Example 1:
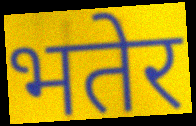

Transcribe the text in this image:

भतेर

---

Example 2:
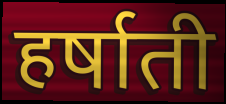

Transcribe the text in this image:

हर्षाती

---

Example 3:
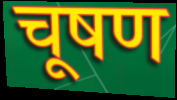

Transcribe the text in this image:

चूषण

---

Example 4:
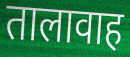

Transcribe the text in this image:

तालावाह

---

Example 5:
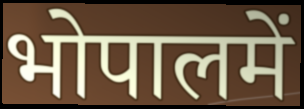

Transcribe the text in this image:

भोपालमें